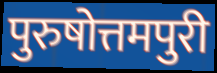
पुरुषोत्तमपुरी